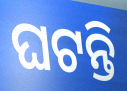
ଘଟନ୍ତି